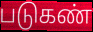
படுகண்